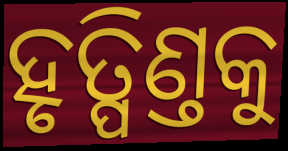
ହୃତ୍ପିଣ୍ତକୁ